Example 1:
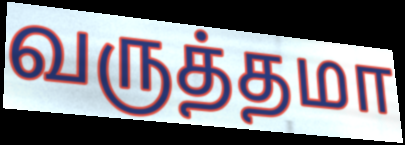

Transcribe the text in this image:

வருத்தமா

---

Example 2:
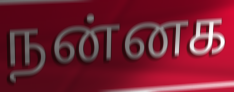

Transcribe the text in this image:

நன்னக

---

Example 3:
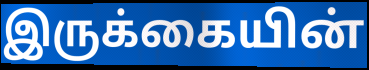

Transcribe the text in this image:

இருக்கையின்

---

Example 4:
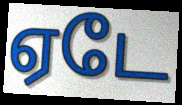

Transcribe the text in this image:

ஏடே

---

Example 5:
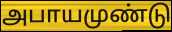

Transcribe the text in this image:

அபாயமுண்டு